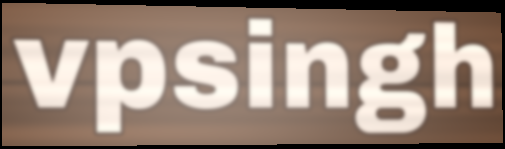
vpsingh